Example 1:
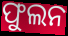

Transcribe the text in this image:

ଫୁଲନ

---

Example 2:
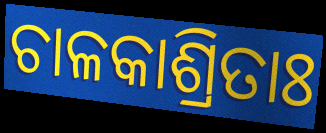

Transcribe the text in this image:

ଚାଳକାଶ୍ରିତାଃ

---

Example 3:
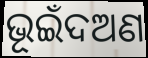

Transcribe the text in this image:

ଭୂଇଁଦଅଣ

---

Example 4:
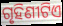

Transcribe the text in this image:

ଗୃହିଣୀଟିଏ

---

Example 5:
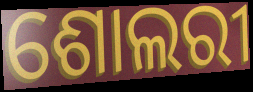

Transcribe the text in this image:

ଶୋଲରୀ